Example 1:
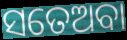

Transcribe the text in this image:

ସତେଅବା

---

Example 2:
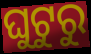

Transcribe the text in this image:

ଘୁଟୁରୁ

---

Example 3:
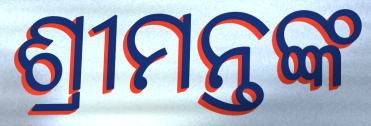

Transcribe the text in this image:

ଶ୍ରୀମନ୍ତଙ୍କ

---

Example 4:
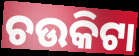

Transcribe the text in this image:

ଚଉକିଟା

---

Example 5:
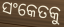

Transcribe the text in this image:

ସଂକେତକୁ